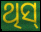
ଥିସ୍